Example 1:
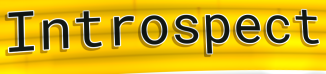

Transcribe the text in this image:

Introspect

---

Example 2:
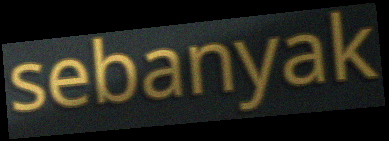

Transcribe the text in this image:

sebanyak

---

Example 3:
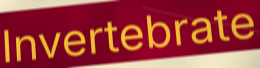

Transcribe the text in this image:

Invertebrate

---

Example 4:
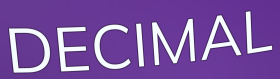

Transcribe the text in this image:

DECIMAL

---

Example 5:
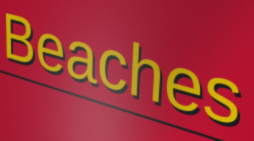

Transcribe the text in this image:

Beaches